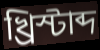
খ্রিস্টাব্দ